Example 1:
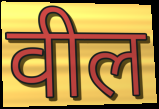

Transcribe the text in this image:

वील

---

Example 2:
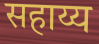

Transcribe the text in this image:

सहाय्य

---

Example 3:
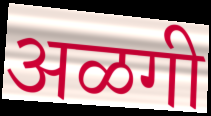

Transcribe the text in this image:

अळगी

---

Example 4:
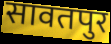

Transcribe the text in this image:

सावतपुर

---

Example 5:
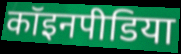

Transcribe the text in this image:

कॉइनपीडिया